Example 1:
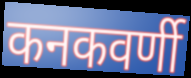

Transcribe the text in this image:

कनकवर्णी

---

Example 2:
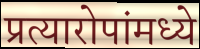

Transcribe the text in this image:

प्रत्यारोपांमध्ये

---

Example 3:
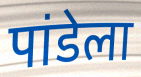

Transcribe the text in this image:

पांडेला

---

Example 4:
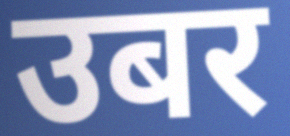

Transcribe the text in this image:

उबर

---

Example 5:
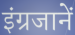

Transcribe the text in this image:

इंग्रजानें